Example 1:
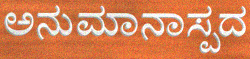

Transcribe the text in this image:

ಅನುಮಾನಾಸ್ಪದ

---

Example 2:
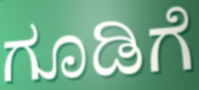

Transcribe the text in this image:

ಗೂಡಿಗೆ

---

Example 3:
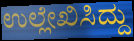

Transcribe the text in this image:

ಉಲ್ಲೇಖಿಸಿದ್ದು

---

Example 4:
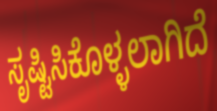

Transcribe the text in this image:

ಸೃಷ್ಟಿಸಿಕೊಳ್ಳಲಾಗಿದೆ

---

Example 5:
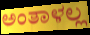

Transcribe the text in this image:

ಅಂತಾಳಲ್ಲ